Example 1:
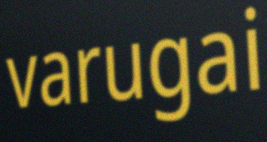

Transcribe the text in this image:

varugai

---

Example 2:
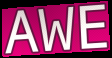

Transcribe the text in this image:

AWE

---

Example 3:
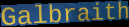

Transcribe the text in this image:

Galbraith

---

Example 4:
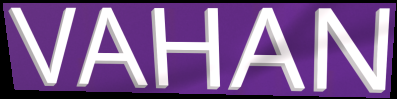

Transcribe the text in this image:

VAHAN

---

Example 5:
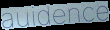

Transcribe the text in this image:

auidence